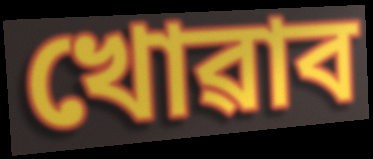
খোৱাব